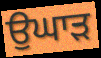
ਉਘਾੜ